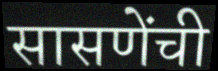
सासणेंची